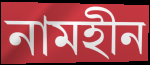
নামহীন